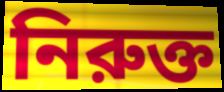
নিরুক্ত